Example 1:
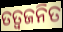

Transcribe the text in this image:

ତତ୍ଵଜନିତ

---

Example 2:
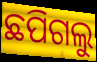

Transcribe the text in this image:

ଛପିଗଲୁ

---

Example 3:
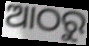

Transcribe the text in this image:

ଆଠରୁ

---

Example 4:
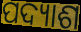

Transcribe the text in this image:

ପଦ୍ୟାଶ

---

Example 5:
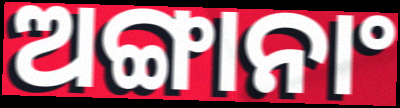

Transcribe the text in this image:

ଅଙ୍ଗାନାଂ